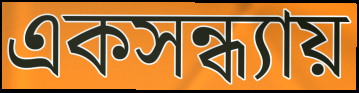
একসন্ধ্যায়